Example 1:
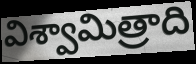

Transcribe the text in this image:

విశ్వామిత్రాది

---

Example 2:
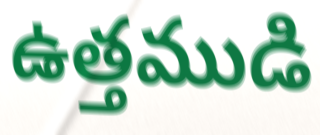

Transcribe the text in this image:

ఉత్తముడి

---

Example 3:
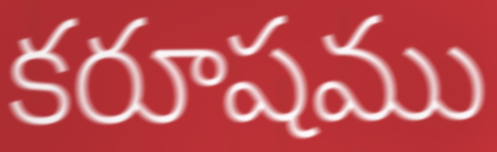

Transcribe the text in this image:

కరూషము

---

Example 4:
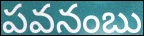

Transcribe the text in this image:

పవనంబు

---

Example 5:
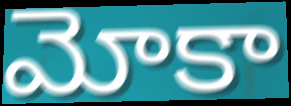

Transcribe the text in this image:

మోకా